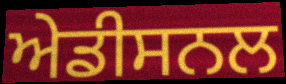
ਅੇਡੀਸਨਲ